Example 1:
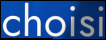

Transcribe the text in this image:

choisi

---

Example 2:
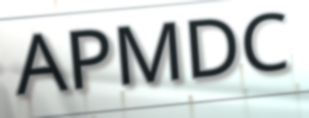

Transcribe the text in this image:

APMDC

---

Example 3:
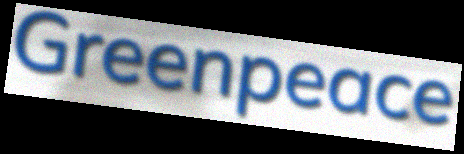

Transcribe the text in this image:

Greenpeace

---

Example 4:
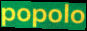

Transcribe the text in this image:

popolo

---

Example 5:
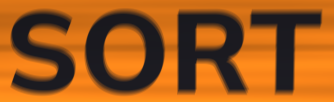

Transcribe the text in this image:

SORT